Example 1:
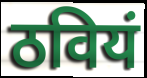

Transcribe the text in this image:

ठवियं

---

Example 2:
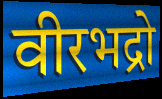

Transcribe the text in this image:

वीरभद्रो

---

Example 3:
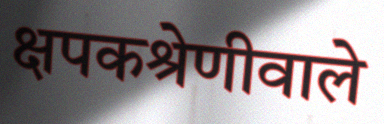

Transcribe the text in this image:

क्षपकश्रेणीवाले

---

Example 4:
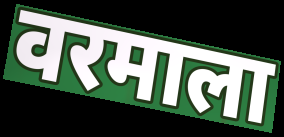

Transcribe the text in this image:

वरमाला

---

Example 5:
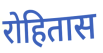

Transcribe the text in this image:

रोहितास